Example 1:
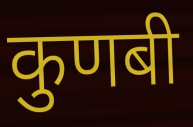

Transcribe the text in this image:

कुणबी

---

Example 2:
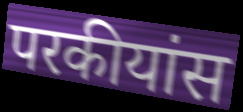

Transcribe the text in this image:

परकीयांस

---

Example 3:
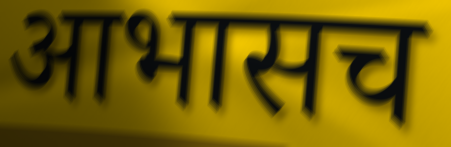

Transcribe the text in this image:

आभासच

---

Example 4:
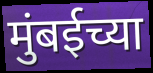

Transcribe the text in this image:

मुंबईच्या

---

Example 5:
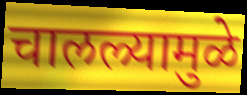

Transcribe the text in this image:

चालल्यामुळे